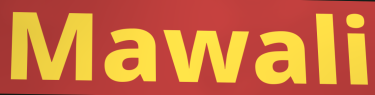
Mawali